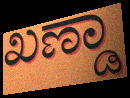
ಖಣ್ಡಾ